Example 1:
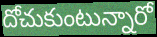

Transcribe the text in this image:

దోచుకుంటున్నారో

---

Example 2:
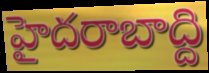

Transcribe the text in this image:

హైదరాబాద్ది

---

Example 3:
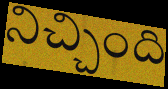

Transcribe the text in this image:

నిచ్చింది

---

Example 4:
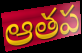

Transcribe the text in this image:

ఆతప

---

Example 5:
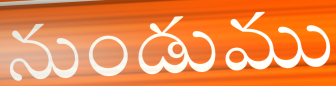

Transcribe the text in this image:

నుండుము